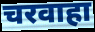
चरवाहा